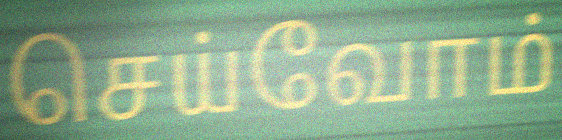
செய்வோம்